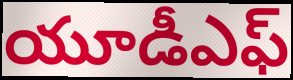
యూడీఎఫ్